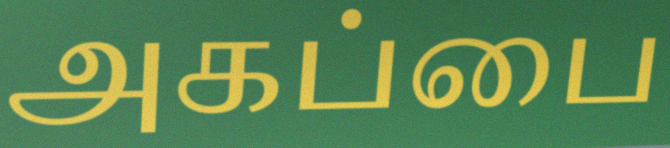
அகப்பை